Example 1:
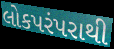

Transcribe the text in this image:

લોકપરંપરાથી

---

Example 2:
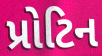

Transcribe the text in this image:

પ્રોટિન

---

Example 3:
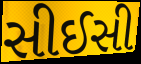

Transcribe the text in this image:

સીઈસી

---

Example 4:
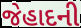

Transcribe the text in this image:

જેહાદની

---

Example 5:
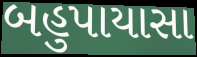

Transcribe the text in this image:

બહુપાયાસા